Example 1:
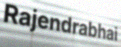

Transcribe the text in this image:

Rajendrabhai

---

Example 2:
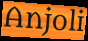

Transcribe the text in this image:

Anjoli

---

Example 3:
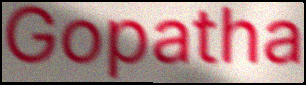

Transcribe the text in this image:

Gopatha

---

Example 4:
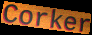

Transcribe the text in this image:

Corker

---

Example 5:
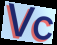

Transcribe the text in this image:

Vc